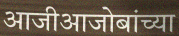
आजीआजोबांच्या